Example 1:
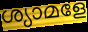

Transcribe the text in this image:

ശ്യാമളേ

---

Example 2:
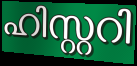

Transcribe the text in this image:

ഹിസ്റ്ററി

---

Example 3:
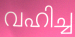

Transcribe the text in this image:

വഹിച്ച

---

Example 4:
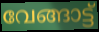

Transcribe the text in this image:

വേങ്ങാട്ട്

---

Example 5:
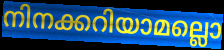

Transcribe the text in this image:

നിനക്കറിയാമല്ലൊ